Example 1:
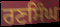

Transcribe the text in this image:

ਰਣਸਿੰਘ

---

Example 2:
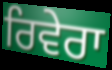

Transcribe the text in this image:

ਰਿਵੇਰਾ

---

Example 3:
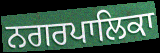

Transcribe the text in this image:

ਨਗਰਪਾਲਿਕਾ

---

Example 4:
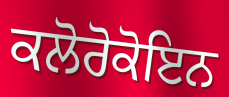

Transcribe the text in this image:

ਕਲੋਰੋਕੋਇਨ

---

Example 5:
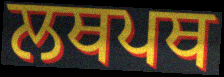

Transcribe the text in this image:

ਲਥਪਥ